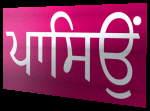
ਪਾਸਿਉਂ